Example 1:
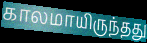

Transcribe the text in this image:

காலமாயிருந்தது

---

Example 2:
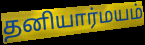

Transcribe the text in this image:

தனியார்மயம்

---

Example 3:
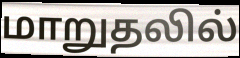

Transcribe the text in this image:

மாறுதலில்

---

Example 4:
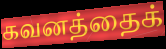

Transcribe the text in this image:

கவனத்தைக்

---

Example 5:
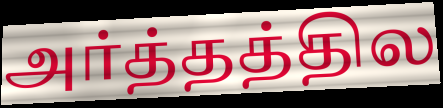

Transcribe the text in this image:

அர்த்தத்தில